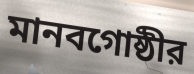
মানবগোষ্ঠীর